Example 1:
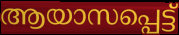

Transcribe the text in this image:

ആയാസപ്പെട്ട്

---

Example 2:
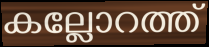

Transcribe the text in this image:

കല്ലോറത്ത്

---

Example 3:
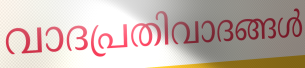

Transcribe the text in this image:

വാദപ്രതിവാദങ്ങൾ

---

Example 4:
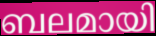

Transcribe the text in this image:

ബലമായി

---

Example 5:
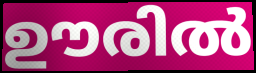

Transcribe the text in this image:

ഊരിൽ